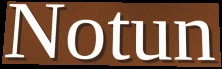
Notun